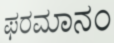
ಫರಮಾನಂ